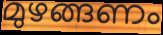
മുഴങ്ങണം